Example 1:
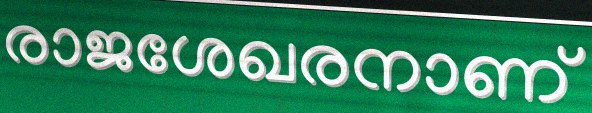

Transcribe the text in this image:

രാജശേഖരനാണ്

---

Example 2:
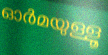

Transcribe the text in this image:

ഓർമയുള്ളൂ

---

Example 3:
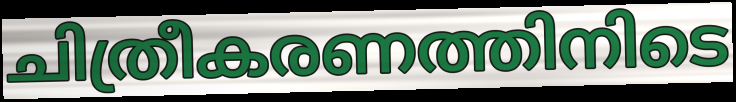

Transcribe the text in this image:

ചിത്രീകരണത്തിനിടെ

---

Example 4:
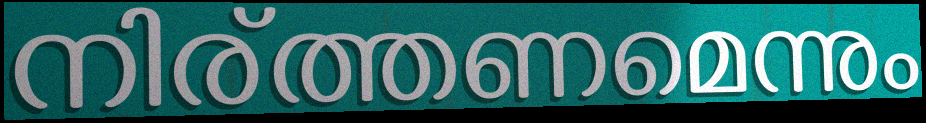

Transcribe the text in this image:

നിര്ത്തണമെന്നും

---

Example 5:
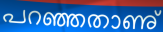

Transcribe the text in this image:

പറഞ്ഞതാണു്